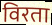
विरता